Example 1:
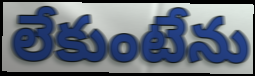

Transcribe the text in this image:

లేకుంటేను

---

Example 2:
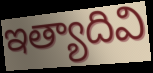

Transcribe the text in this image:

ఇత్యాదివి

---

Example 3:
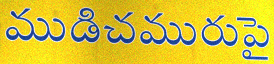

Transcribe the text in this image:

ముడిచమురుపై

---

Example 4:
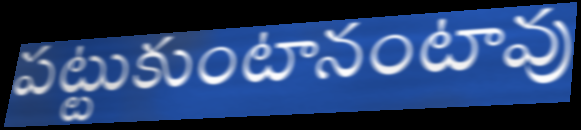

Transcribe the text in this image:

పట్టుకుంటానంటావు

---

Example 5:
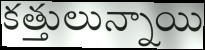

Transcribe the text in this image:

కత్తులున్నాయి